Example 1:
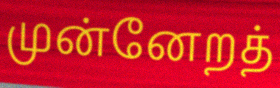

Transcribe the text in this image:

முன்னேறத்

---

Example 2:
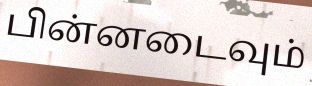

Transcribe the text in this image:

பின்னடைவும்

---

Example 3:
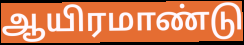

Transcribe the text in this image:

ஆயிரமாண்டு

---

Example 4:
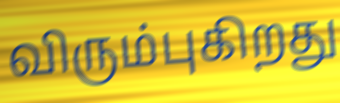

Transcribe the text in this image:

விரும்புகிறது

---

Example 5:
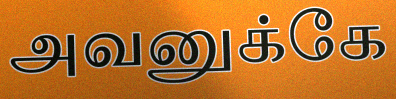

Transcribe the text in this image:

அவனுக்கே